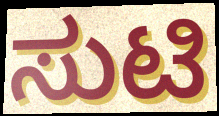
ಸುಟಿ